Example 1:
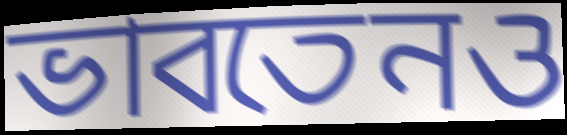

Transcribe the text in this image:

ভাবতেনও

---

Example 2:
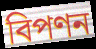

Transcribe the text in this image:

বিপণন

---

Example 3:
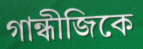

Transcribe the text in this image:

গান্ধীজিকে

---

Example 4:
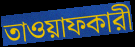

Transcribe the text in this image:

তাওয়াফকারী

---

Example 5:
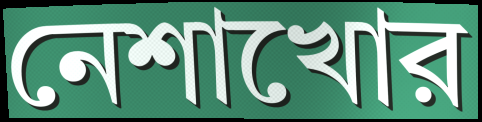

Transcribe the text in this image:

নেশাখোর